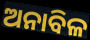
ଅନାବିଳ